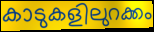
കാടുകളിലുറക്കം